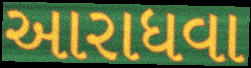
આરાધવા